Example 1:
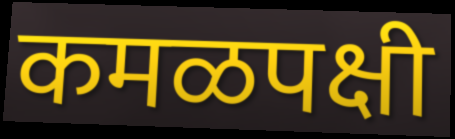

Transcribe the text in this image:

कमळपक्षी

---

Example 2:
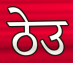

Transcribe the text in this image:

ठेउ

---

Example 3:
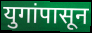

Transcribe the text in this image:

युगांपासून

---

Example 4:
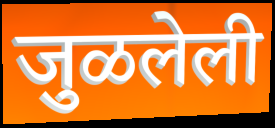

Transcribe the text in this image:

जुळलेली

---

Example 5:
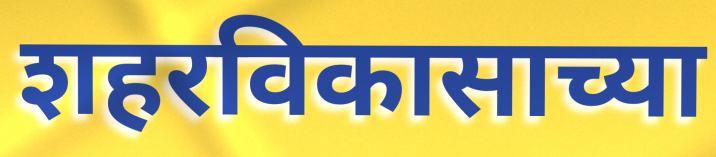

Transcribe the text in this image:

शहरविकासाच्या